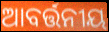
ଆବର୍ତ୍ତନୀୟ